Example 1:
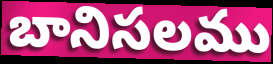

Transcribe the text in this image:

బానిసలము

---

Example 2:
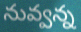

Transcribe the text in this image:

నువ్వన్న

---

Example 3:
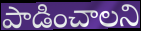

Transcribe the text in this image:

పాడించాలని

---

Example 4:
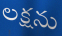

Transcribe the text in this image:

లక్షను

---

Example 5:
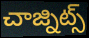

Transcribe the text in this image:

చాజ్నిట్స్